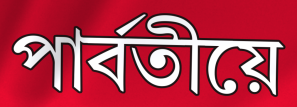
পাৰ্বতীয়ে